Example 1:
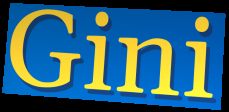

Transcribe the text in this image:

Gini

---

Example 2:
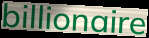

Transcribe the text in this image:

billionaire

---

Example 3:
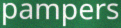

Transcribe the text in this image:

pampers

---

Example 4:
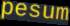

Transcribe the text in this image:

pesum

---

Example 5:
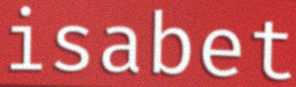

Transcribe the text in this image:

isabet